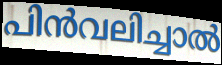
പിൻവലിച്ചാൽ